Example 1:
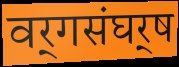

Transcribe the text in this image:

वर्गसंघर्ष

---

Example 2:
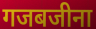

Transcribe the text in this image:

गजबजीना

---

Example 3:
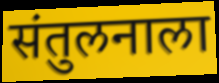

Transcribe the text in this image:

संतुलनाला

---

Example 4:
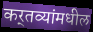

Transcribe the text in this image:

कर्तव्यांमधील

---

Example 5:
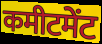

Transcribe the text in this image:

कमीटमेंट